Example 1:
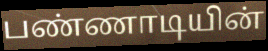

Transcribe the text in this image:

பண்ணாடியின்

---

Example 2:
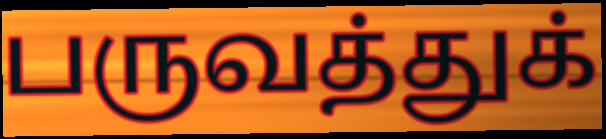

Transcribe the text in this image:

பருவத்துக்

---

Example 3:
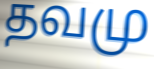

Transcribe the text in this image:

தவமு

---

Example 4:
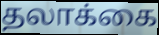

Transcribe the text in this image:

தலாக்கை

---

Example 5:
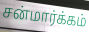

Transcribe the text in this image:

சன்மார்க்கம்